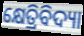
କ୍ଷେତ୍ରିବିଦ୍ୟା